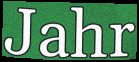
Jahr